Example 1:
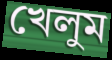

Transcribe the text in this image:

খেলুম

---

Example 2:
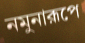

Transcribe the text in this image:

নমুনারূপে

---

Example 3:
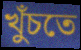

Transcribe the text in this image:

খুঁচতে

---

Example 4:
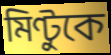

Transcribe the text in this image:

মিণ্টুকে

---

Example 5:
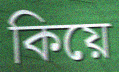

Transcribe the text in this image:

কিয়ে